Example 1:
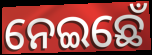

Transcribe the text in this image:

ନେଇଛେଁ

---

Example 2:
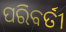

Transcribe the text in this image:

ପରିବର୍ତୀ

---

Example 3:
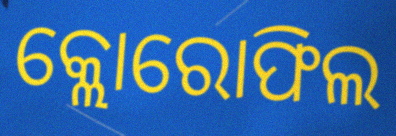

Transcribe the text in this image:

କ୍ଲୋରୋଫିଲ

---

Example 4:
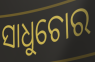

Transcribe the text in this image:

ସାଧୁଚୋର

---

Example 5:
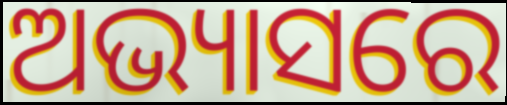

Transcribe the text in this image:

ଅଭ୍ୟାସରେ